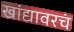
खांद्यावरचं